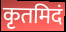
कृतमिदं